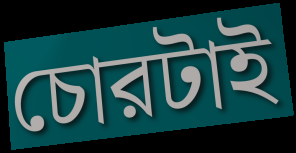
চোরটাই